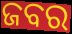
ଜବର